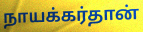
நாயக்கர்தான்